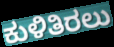
ಕುಳಿತಿರಲು